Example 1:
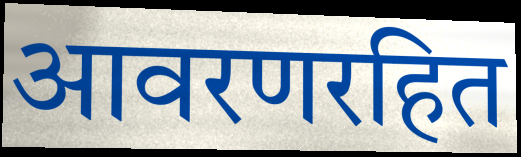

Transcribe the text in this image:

आवरणरहित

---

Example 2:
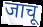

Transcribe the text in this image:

जाचू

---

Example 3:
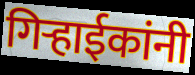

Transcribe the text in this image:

गिऱ्हाईकांनी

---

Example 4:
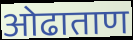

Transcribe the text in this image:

ओढाताण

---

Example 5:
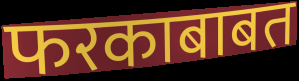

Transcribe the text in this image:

फरकाबाबत